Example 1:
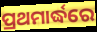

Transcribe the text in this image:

ପ୍ରଥମାର୍ଦ୍ଧରେ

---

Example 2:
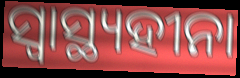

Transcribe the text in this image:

ସ୍ଵାସ୍ଥ୍ୟହୀନା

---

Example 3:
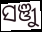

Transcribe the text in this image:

ସଞ୍ଜୁ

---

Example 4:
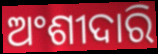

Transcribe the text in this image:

ଅଂଶୀଦାରି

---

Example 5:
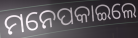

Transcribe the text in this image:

ମନେପକାଇଲେ